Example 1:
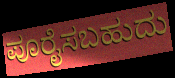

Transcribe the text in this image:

ಪೂರೈಸಬಹುದು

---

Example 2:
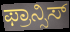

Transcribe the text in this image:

ಫ್ರಾನ್ಸಿಸ್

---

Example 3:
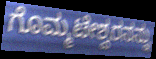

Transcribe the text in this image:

ಗೊಮ್ಮಟೇಶ್ವರನನ್ನು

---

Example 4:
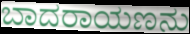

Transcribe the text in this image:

ಬಾದರಾಯಣನು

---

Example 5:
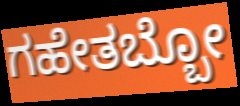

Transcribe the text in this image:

ಗಹೇತಬ್ಬೋ